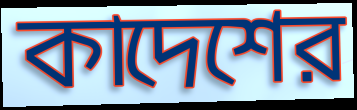
কাদেশের